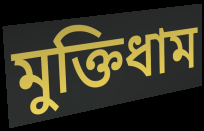
মুক্তিধাম